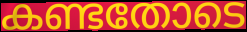
കണ്ടതോടെ